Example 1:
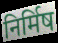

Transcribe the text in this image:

निर्मिष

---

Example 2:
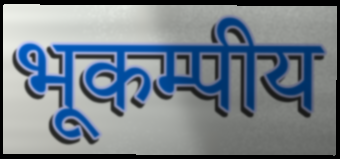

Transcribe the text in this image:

भूकम्पीय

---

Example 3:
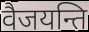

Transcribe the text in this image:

वैजयन्ति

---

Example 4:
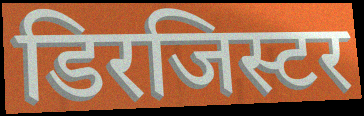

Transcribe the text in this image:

डिरजिस्टर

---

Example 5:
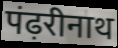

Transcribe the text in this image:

पंढ़रीनाथ